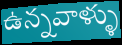
ఉన్నవాళ్ళు